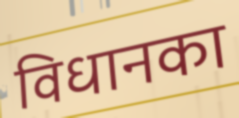
विधानका